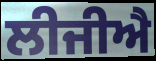
ਲੀਜੀਐ